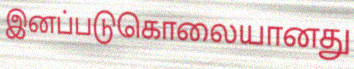
இனப்படுகொலையானது